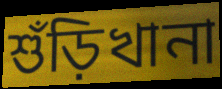
শুঁড়িখানা